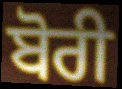
ਬੋਰੀ